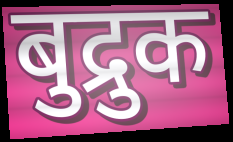
बुद्रुक